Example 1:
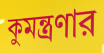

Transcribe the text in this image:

কুমন্ত্রণার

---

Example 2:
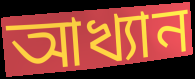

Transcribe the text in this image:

আখ্যান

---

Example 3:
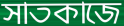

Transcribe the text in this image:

সাতকাজে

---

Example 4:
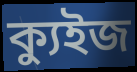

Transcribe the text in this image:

ক্যুইজ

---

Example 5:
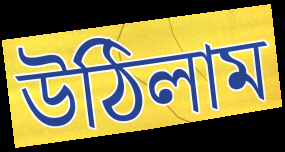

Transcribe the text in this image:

উঠিলাম